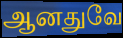
ஆனதுவே